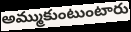
అమ్ముకుంటుంటారు